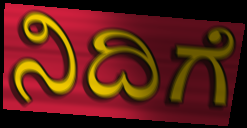
ನಿದಿಗೆ